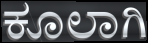
ಕೂಲಾಗಿ